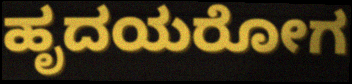
ಹೃದಯರೋಗ